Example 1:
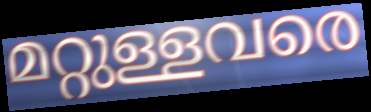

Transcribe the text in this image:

മറ്റുള്ളവരെ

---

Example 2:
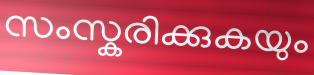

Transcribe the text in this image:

സംസ്കരിക്കുകയും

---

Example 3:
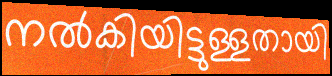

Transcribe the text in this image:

നൽകിയിട്ടുള്ളതായി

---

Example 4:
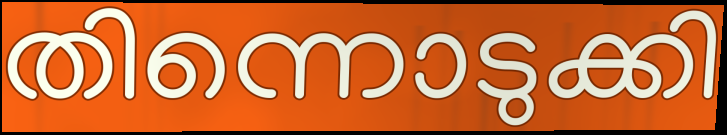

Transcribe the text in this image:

തിന്നൊടുക്കി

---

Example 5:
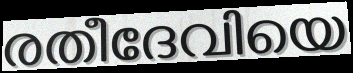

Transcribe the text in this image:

രതീദേവിയെ